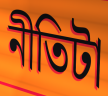
নীতিটা